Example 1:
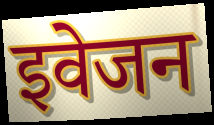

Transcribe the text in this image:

इवेजन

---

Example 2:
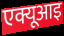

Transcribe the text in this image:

एक्यूआइ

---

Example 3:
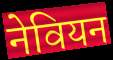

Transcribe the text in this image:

नेवियन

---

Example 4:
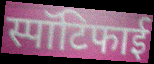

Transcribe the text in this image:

स्पॉटिफाई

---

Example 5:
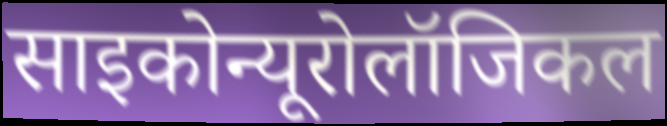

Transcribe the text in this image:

साइकोन्यूरोलॉजिकल